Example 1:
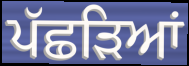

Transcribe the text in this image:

ਪੱਛੜਿਆਂ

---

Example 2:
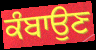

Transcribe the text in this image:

ਕੰਬਾਉਣ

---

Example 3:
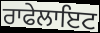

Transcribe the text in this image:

ਰਾਫੇਲਾਇਟ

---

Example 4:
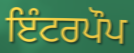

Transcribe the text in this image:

ਇੰਟਰਪੌਪ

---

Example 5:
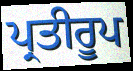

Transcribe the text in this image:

ਪ੍ਰਤੀਰੂਪ